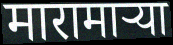
मारामार्‍या